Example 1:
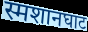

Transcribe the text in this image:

स्मशानघाट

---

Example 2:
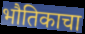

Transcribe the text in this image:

भौतिकाचा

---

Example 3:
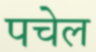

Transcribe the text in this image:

पचेल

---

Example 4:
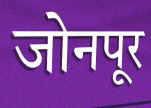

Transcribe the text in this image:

जोनपूर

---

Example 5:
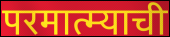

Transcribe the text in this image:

परमात्म्याची